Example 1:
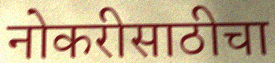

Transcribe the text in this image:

नोकरीसाठीचा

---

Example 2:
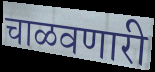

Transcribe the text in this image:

चाळवणारी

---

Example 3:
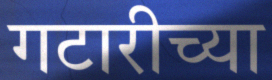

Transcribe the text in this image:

गटारीच्या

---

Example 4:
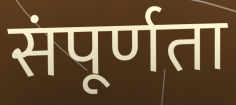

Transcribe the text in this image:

संपूर्णता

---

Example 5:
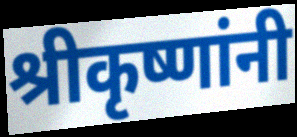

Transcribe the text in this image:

श्रीकृष्णांनी